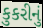
કુકરીનું